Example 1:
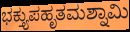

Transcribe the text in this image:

ಭಕ್ತ್ಯುಪಹೃತಮಶ್ನಾಮಿ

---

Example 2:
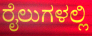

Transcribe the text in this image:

ರೈಲುಗಳಲ್ಲಿ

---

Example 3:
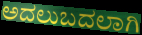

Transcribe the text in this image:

ಅದಲುಬದಲಾಗಿ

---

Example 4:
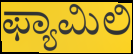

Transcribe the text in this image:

ಫ್ಯಾಮಿಲಿ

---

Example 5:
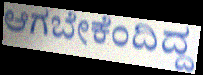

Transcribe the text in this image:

ಆಗಬೇಕೆಂದಿದ್ದ